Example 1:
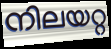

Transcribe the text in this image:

നിലയറ്റ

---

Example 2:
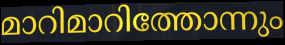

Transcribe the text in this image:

മാറിമാറിത്തോന്നും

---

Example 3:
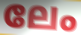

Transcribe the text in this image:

ലേം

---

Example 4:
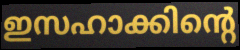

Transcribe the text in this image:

ഇസഹാക്കിന്റെ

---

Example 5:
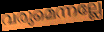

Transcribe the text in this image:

വരുമെന്നല്ലേ